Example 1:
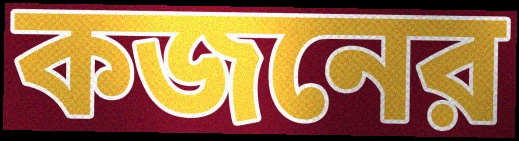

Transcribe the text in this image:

কজনের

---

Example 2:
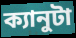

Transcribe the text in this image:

ক্যানুটা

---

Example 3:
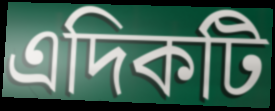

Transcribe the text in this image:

এদিকটি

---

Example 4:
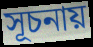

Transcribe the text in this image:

সূচনায়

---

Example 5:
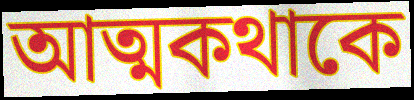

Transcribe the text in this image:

আত্মকথাকে